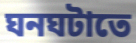
ঘনঘটাতে